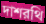
দাশরথি